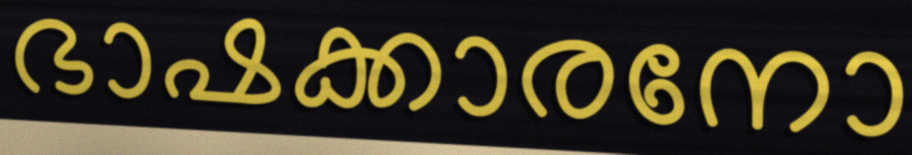
ഭാഷക്കാരനോ